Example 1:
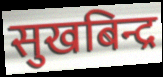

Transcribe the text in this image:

सुखबिन्द्र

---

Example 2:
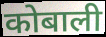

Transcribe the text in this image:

कोबाली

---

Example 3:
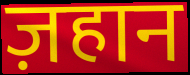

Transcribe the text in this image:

ज़हान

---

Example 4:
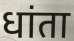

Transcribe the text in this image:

धांता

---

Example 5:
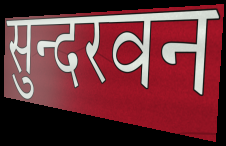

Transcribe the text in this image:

सुन्दरवन